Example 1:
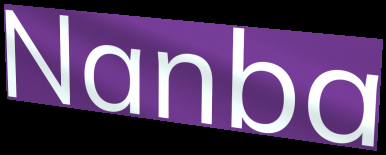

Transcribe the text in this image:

Nanba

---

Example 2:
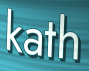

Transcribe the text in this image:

kath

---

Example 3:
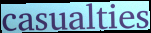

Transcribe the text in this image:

casualties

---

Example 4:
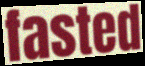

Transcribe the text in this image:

fasted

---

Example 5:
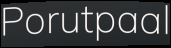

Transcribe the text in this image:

Porutpaal